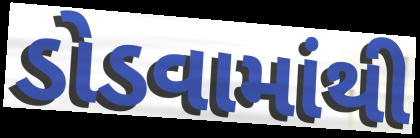
ડોડવામાંથી